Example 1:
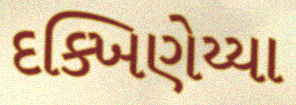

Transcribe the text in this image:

દક્ખિણેય્યા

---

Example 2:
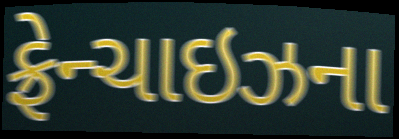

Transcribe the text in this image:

ફ્રેન્ચાઇઝના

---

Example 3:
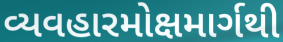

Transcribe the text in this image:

વ્યવહારમોક્ષમાર્ગથી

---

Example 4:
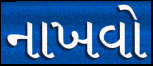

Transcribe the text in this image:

નાખવો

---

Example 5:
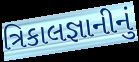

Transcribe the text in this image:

ત્રિકાલજ્ઞાનીનું